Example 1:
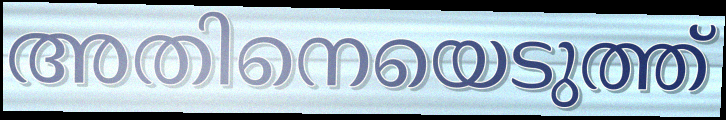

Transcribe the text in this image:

അതിനെയെടുത്ത്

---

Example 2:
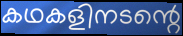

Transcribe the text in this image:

കഥകളിനടന്റെ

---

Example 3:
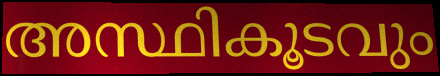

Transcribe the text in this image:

അസ്ഥികൂടവും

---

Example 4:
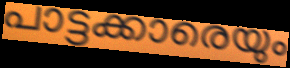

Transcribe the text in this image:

പാട്ടക്കാരെയും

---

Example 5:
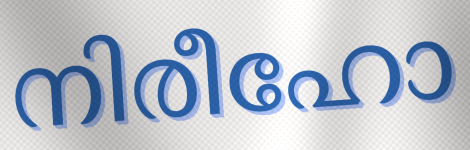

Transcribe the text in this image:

നിരീഹോ